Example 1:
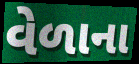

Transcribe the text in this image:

વેળાના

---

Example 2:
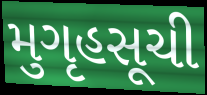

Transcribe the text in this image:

મુગૃહસૂચી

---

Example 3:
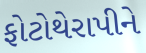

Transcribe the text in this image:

ફોટોથેરાપીને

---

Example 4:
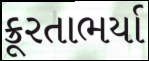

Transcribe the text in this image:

ક્રૂરતાભર્યા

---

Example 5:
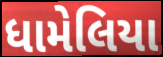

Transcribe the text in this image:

ધામેલિયા